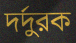
দর্দুরক